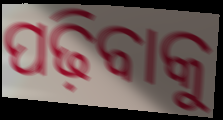
ପଢ଼ିବାକୁ